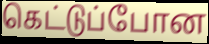
கெட்டுப்போன